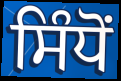
ਸਿੰਧੋਂ